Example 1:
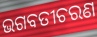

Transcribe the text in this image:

ଭଗବତୀଚରଣ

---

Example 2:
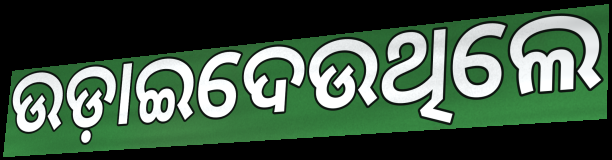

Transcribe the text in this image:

ଉଡ଼ାଇଦେଉଥିଲେ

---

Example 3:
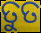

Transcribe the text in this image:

ତୁତ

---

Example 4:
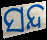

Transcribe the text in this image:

ସନ୍ଦ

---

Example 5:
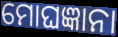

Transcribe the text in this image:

ମୋଘଜ୍ଞାନା